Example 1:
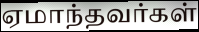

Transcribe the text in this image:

ஏமாந்தவர்கள்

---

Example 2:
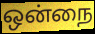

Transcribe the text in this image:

ஒன்நை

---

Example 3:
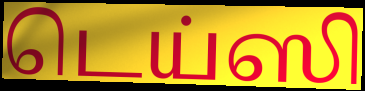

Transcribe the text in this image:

டெய்ஸி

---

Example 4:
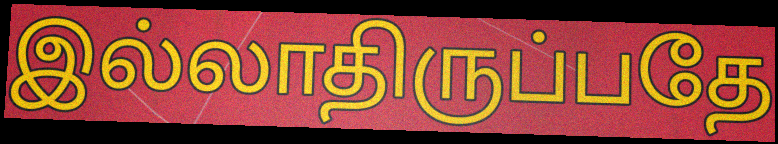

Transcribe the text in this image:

இல்லாதிருப்பதே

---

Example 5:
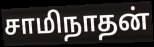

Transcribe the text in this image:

சாமிநாதன்